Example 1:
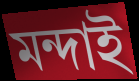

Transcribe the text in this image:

মন্দাই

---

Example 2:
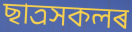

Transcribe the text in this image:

ছাত্ৰসকলৰ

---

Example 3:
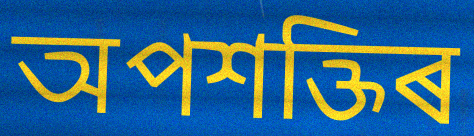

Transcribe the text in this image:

অপশক্তিৰ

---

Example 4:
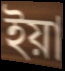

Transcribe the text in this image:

ইয়া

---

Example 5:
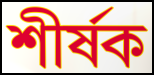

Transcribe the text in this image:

শীৰ্ষক